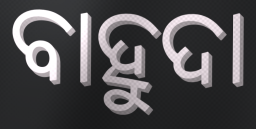
ବାହୁଦା